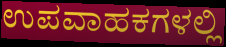
ಉಪವಾಹಕಗಳಲ್ಲಿ